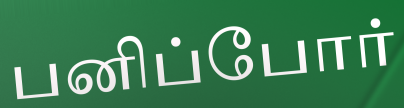
பனிப்போர்